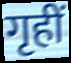
गृहीं